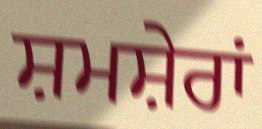
ਸ਼ਮਸ਼ੇਰਾਂ